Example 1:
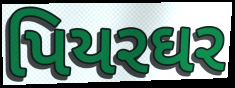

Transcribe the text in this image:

પિયરઘર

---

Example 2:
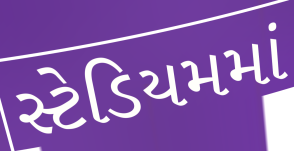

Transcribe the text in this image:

સ્ટેડિયમમાં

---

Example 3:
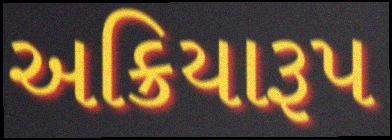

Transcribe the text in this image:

અક્રિયારૂપ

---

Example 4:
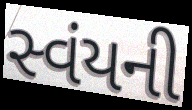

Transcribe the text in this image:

સ્વંયની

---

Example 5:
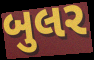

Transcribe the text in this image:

બુલર